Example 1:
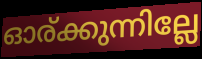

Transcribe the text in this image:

ഓര്ക്കുന്നില്ലേ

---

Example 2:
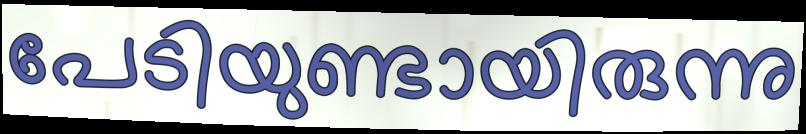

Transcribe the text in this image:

പേടിയുണ്ടായിരുന്നു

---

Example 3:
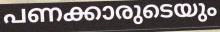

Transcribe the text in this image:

പണക്കാരുടെയും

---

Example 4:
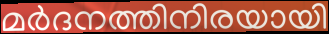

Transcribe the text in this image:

മർദനത്തിനിരയായി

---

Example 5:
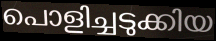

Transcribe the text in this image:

പൊളിച്ചടുക്കിയ